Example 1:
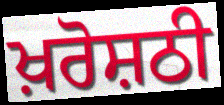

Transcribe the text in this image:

ਖ਼ਰੋਸ਼ਠੀ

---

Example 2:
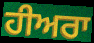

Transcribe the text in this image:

ਹੀਅਰਾ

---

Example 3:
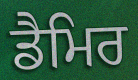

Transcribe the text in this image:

ਡੈਮਿਰ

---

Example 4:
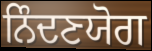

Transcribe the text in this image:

ਨਿੰਦਣਯੋਗ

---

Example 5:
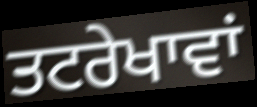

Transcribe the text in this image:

ਤਟਰੇਖਾਵਾਂ